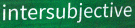
intersubjective